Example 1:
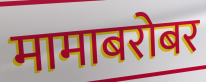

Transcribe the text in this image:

मामाबरोबर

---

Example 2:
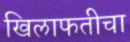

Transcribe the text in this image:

खिलाफतीचा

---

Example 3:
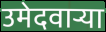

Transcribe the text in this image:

उमेदवाऱ्या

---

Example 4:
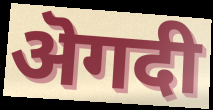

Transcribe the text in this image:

ऄगदी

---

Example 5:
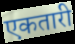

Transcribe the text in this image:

एकतारी